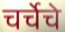
चर्चेचे